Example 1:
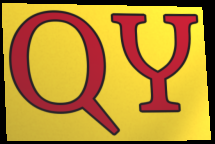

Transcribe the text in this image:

QY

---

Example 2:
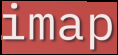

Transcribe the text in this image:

imap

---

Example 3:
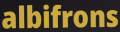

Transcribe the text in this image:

albifrons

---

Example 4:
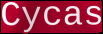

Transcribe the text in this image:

Cycas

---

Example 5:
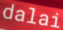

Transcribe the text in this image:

dalai